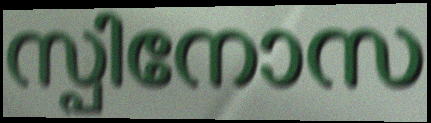
സ്പിനോസ